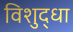
विशुद्धा